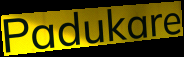
Padukare